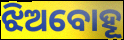
ଝିଅବୋହୂ